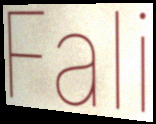
Fali